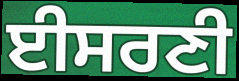
ਈਸਰਣੀ